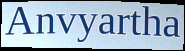
Anvyartha